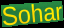
Sohar